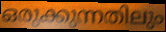
ഒരുക്കുന്നതിലും